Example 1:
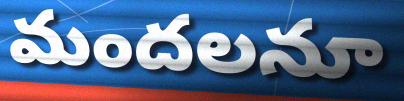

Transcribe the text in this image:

మందలనూ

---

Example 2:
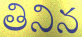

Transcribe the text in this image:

తినిన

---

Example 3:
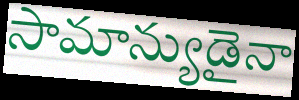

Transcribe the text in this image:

సామాన్యుడైనా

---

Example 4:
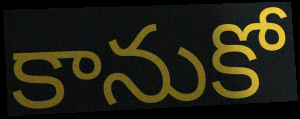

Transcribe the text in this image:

కానుకో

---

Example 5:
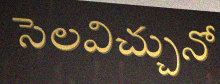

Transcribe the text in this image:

సెలవిచ్చునో